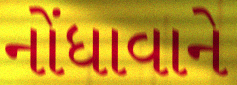
નોંધાવાને